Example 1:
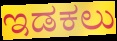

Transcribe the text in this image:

ಇಡಕಲು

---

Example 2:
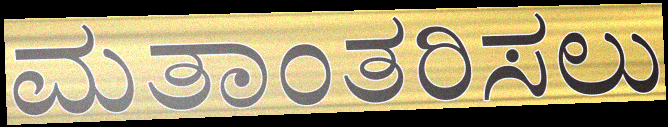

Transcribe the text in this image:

ಮತಾಂತರಿಸಲು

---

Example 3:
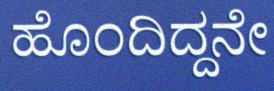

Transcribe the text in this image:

ಹೊಂದಿದ್ದನೇ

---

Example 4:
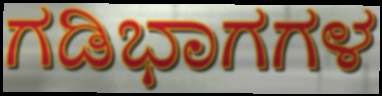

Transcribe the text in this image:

ಗಡಿಭಾಗಗಳ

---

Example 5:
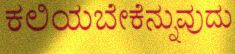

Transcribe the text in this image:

ಕಲಿಯಬೇಕೆನ್ನುವುದು